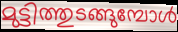
മുട്ടിത്തുടങ്ങുമ്പോൾ